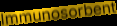
Immunosorbent